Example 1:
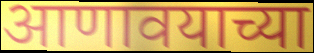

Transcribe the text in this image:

आणावयाच्या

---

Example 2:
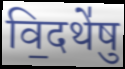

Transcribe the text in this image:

वि॒दथे॑षु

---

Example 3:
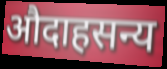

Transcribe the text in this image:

औदाहसन्य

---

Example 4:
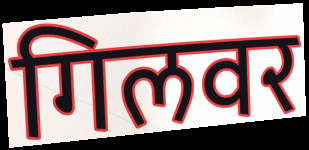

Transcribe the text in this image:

गिलवर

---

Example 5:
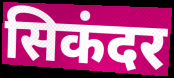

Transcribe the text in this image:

सिकंदर